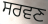
ਸਰਵਣ